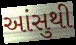
આંસુથી